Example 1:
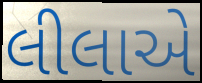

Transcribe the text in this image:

લીલાએ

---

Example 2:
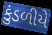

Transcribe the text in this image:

કુંડળીયે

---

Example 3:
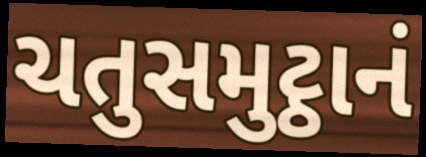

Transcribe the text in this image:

ચતુસમુટ્ઠાનં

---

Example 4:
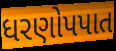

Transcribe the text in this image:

ધરણોપપાત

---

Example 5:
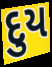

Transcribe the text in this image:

દુય